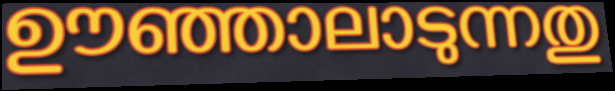
ഊഞ്ഞാലാടുന്നതു